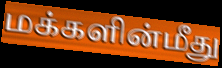
மக்களின்மீது